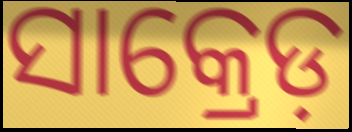
ସାକ୍ରେଡ଼